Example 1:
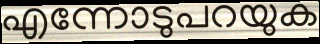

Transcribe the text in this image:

എന്നോടുപറയുക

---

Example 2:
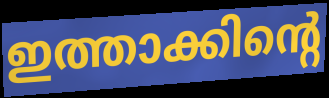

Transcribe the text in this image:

ഇത്താക്കിന്റെ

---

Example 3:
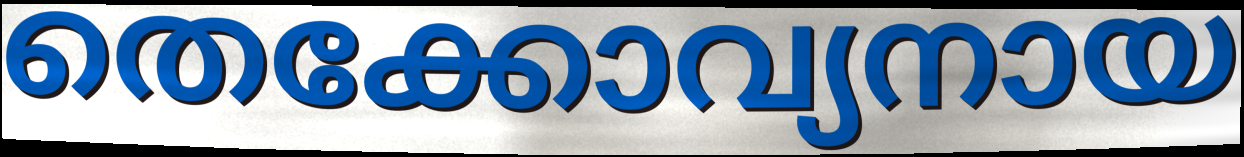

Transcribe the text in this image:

തെക്കോവ്യനായ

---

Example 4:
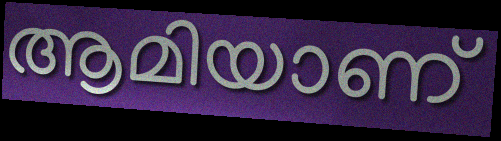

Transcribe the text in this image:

ആമിയാണ്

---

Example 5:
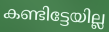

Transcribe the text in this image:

കണ്ടിട്ടേയില്ല